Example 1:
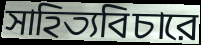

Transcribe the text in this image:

সাহিত্যবিচারে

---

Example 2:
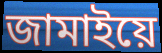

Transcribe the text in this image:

জামাইয়ে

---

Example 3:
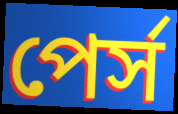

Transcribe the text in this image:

পের্স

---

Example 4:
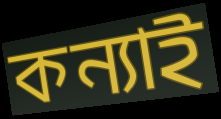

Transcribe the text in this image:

কন্যাই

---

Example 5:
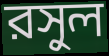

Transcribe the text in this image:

রসুল